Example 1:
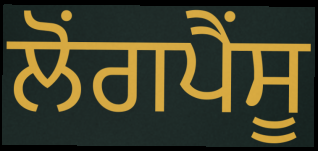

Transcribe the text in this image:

ਲੋਂਗਪੈਂਸੂ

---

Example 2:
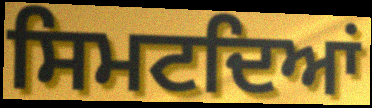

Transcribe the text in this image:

ਸਿਮਟਦਿਆਂ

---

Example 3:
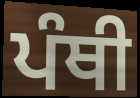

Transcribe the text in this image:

ਪੰਥੀ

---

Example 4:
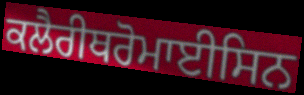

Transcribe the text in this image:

ਕਲੈਰੀਥਰੋਮਾਈਸਿਨ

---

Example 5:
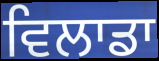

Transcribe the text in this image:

ਵਿਲਾਡਾ